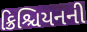
ક્રિશ્ચિયનની